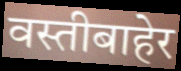
वस्तीबाहेर